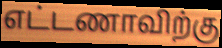
எட்டணாவிற்கு